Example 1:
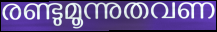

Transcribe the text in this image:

രണ്ടുമൂന്നുതവണ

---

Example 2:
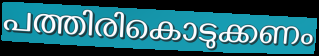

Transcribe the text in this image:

പത്തിരികൊടുക്കണം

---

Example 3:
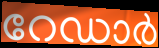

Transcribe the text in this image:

റേഡാർ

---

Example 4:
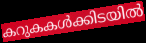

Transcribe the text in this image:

കറുകകൾക്കിടയിൽ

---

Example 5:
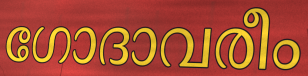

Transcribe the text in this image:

ഗോദാവരീം